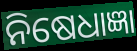
ନିଷେଧାଜ୍ଞା